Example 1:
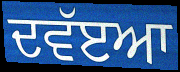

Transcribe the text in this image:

ਦਵੱੲਆ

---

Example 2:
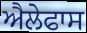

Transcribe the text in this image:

ਐਲੇਫਾਸ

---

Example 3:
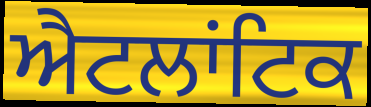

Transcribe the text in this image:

ਐਟਲਾਂਟਿਕ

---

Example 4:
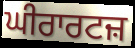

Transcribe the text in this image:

ਘੀਰਾਰਟਜ਼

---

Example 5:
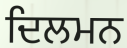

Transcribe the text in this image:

ਦਿਲਮਨ